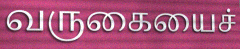
வருகையைச்